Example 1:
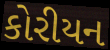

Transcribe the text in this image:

કોરીયન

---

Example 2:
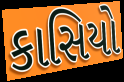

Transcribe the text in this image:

કાસિયો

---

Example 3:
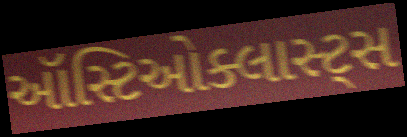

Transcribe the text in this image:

ઑસ્ટિઓક્લાસ્ટ્સ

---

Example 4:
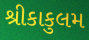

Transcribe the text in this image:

શ્રીકાકુલમ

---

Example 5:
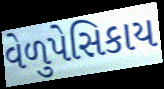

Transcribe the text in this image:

વેળુપેસિકાય